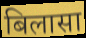
बिलासा